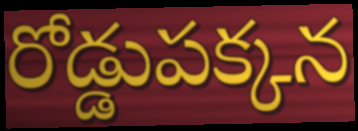
రోడ్డుపక్కన